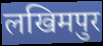
लखिमपुर